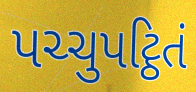
પચ્ચુપટ્ઠિતં